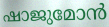
ഷാജുമോൻ